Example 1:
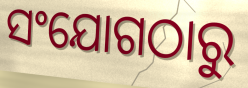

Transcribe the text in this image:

ସଂଯୋଗଠାରୁ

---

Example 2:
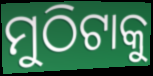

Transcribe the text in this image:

ମୁଠିଟାକୁ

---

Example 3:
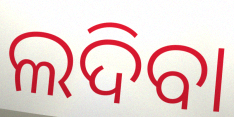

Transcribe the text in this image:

ଲଦିବା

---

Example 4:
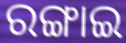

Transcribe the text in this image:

ରଙ୍ଗାଇ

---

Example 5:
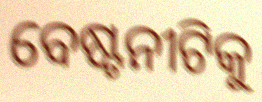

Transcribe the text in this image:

ବେଷ୍ଟନୀଟିକୁ